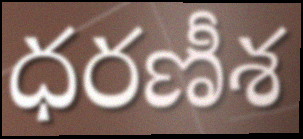
ధరణీశ